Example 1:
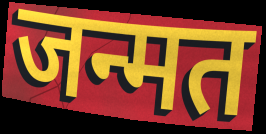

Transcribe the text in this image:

जन्मत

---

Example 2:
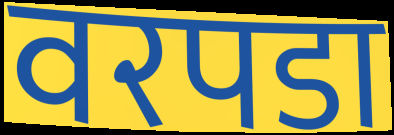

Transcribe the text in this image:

वरपडा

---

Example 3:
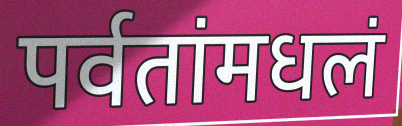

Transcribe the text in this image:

पर्वतांमधलं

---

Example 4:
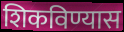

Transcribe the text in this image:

शिकविण्यास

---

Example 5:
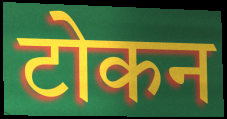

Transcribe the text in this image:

टोकन